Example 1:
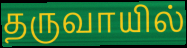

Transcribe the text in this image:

தருவாயில்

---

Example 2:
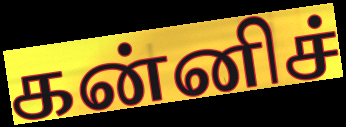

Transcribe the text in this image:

கன்னிச்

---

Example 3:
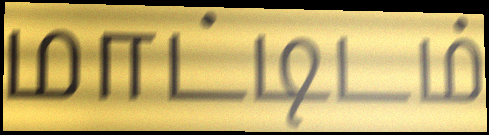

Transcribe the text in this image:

மாட்டிடம்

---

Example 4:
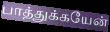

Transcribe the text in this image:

பாத்துக்கயேன்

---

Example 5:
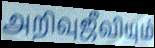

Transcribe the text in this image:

அறிவுஜீவியும்